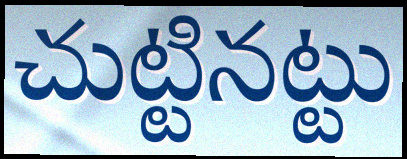
చుట్టినట్టు